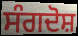
ਸੰਗਦੋਸ਼